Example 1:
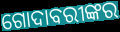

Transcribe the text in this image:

ଗୋଦାବରୀଙ୍କର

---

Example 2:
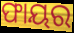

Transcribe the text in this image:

ଫାୟର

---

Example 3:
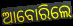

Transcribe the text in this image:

ଆବୋରିଲେ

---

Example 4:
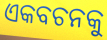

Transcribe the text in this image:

ଏକବଚନକୁ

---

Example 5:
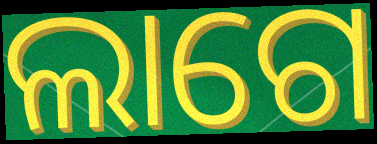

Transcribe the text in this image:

ଲାଗେ